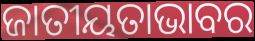
ଜାତୀୟତାଭାବର